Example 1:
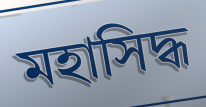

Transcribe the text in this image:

মহাসিদ্ধ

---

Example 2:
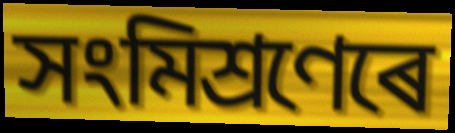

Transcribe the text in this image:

সংমিশ্ৰণেৰে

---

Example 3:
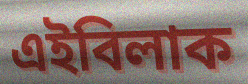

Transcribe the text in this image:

এইবিলাক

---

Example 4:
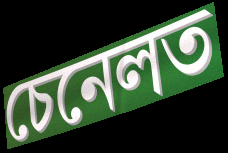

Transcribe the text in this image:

চেনেলত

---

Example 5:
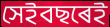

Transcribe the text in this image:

সেইবছৰেই